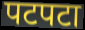
पटपटा